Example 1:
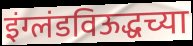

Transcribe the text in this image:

इंग्लंडविऊद्धच्या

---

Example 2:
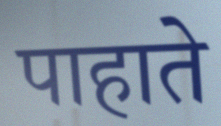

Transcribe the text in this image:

पाहाते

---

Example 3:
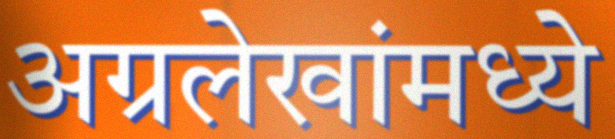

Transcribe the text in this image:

अग्रलेखांमध्ये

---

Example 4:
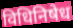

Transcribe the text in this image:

विधिनिषेध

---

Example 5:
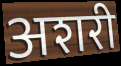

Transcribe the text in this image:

अशरी